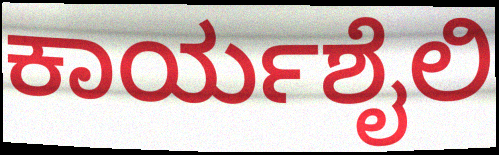
ಕಾರ್ಯಶೈಲಿ